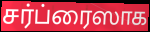
சர்ப்ரைஸாக